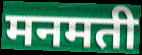
मनमती